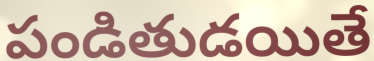
పండితుడయితే